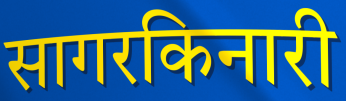
सागरकिनारी